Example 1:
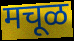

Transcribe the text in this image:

मचूळ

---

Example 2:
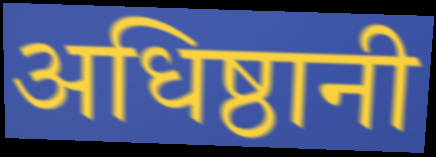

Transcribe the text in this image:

अधिष्ठानी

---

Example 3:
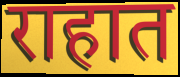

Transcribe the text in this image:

राहात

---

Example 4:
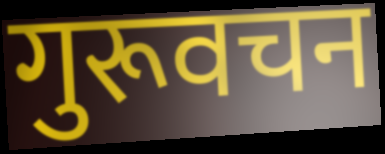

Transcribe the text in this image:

गुरूवचन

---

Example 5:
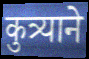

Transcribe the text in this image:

कुत्र्याने